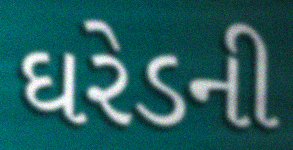
ઘરેડની